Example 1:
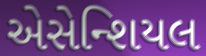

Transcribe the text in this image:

એસેન્શિયલ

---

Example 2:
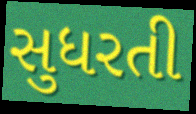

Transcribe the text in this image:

સુધરતી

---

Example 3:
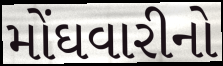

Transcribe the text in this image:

મોંઘવારીનો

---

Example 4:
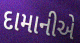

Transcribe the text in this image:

દામાનીએ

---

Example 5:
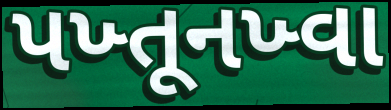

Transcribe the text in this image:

પખ્તૂનખ્વા